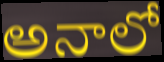
అనాలో